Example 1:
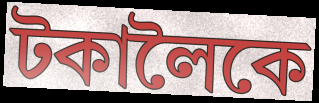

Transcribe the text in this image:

টকালৈকে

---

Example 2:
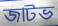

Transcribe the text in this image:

জাটভ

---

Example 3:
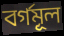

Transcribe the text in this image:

বৰ্গমূল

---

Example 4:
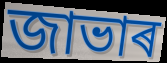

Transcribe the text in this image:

জাভাৰ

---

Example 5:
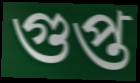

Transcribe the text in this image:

গুপ্ত